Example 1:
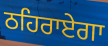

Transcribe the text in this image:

ਠਹਿਰਾਏਗਾ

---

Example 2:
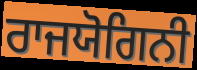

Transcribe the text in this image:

ਰਾਜਯੋਗਿਨੀ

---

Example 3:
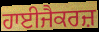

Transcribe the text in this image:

ਹਾਈਜੈਕਰਜ਼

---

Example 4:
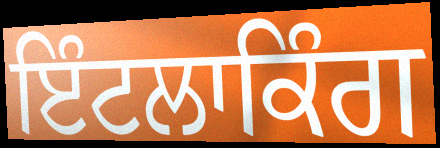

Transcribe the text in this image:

ਇੰਟਲਾਕਿੰਗ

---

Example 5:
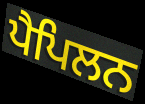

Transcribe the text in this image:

ਪੈਪਿਲਨ